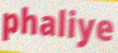
phaliye